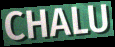
CHALU